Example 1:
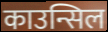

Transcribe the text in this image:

काउन्सिल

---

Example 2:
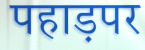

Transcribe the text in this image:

पहाड़पर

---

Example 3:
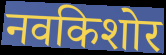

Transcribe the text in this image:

नवकिशोर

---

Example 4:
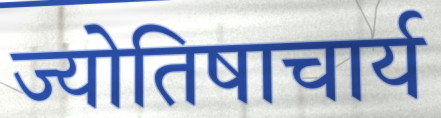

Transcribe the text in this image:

ज्योतिषाचार्य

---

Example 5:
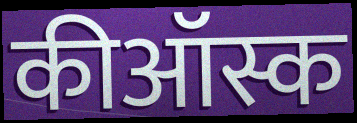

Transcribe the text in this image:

कीऑस्क